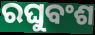
ରଘୁବଂଶ